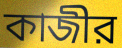
কাজীর